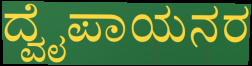
ದ್ವೈಪಾಯನರ